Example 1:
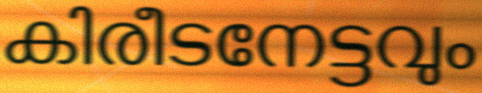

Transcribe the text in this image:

കിരീടനേട്ടവും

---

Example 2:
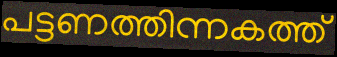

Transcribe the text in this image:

പട്ടണത്തിന്നകത്ത്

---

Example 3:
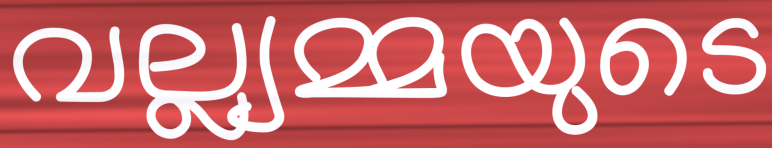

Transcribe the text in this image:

വല്ല്യമ്മയുടെ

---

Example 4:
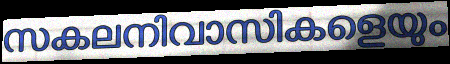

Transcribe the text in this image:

സകലനിവാസികളെയും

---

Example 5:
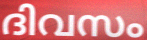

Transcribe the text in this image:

ദിവസം